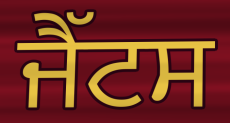
ਜੈੱਟਸ